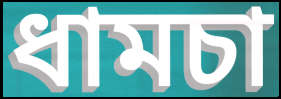
ধামচা